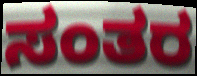
ಸಂತರ